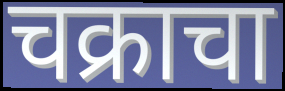
चक्राचा